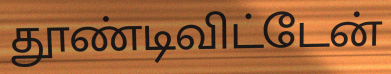
தூண்டிவிட்டேன்